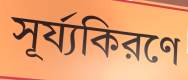
সূর্য্যকিরণে